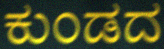
ಕುಂಡದ